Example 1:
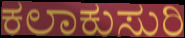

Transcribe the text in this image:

ಕಲಾಕುಸುರಿ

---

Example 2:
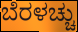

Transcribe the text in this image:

ಬೆರಳಚ್ಚು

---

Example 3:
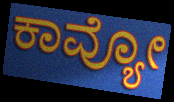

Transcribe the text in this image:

ಕಾವ್ಯೋ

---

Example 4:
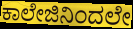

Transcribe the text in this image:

ಕಾಲೇಜಿನಿಂದಲೇ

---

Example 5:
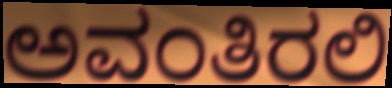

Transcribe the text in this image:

ಅವಂತಿರಲಿ